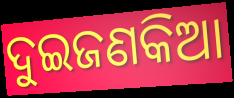
ଦୁଇଜଣକିଆ